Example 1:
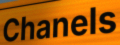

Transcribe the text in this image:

Chanels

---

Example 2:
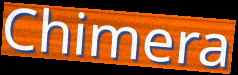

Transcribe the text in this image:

Chimera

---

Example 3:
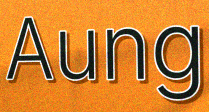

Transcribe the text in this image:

Aung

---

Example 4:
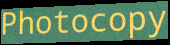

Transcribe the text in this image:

Photocopy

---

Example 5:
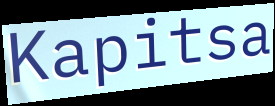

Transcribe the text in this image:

Kapitsa